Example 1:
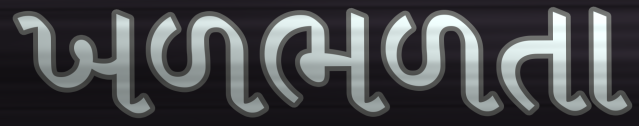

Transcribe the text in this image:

ખળભળતા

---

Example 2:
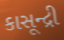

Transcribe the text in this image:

કાસૂન્દ્રી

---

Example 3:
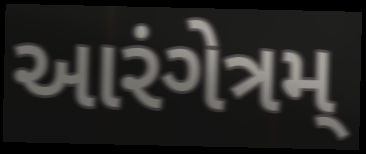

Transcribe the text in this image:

આરંગેત્રમ્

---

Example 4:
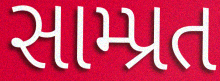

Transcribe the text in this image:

સામ્પ્રત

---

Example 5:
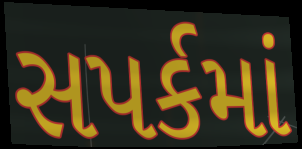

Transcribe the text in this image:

સપર્કમાં